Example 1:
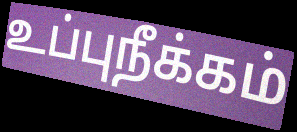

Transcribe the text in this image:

உப்புநீக்கம்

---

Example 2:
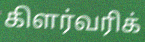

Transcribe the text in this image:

கிளர்வரிக்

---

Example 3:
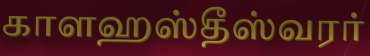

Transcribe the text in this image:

காளஹஸ்தீஸ்வரர்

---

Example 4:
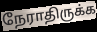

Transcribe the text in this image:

நேராதிருக்க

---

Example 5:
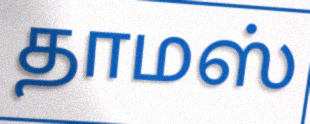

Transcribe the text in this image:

தாமஸ்